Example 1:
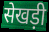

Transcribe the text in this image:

सेखड़ी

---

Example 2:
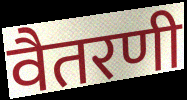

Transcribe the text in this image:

वैतरणी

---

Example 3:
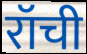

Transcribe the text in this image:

रॉची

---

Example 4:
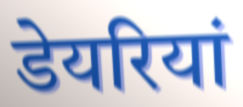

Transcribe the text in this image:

डेयरियां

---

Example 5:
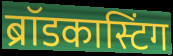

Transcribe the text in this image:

ब्रॉडकास्टिंग